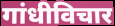
गांधीविचार